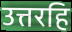
उत्तरहि